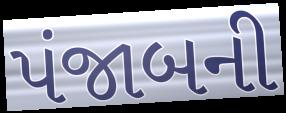
પંજાબની